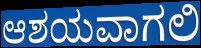
ಆಶಯವಾಗಲಿ